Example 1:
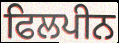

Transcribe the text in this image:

ਫਿਲਪੀਨ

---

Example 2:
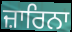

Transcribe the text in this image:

ਜ਼ਾਰਿਨਾ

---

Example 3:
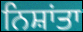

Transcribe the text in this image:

ਨਿਸ਼ਾਂਤਾ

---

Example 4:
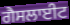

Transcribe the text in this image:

ਗੈਸਲਾਈਟ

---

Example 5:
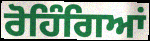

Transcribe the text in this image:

ਰੋਹਿੰਗਿਆਂ